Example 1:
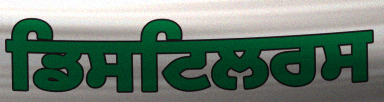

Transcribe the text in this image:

ਡਿਸਟਿਲਰਸ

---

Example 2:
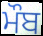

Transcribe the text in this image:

ਮੌਬ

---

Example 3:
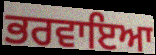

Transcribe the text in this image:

ਭਰਵਾਇਆ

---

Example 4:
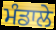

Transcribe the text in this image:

ਮੰਡਾਲੇ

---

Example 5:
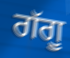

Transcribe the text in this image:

ਗੱਗੂ